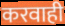
करवाही